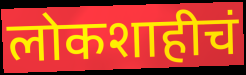
लोकशाहीचं